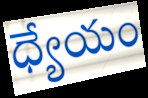
ధ్యేయం